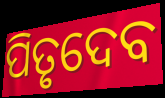
ପିତୃଦେବ